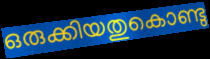
ഒരുക്കിയതുകൊണ്ടു